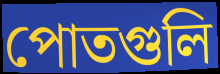
পোতগুলি